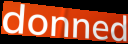
donned